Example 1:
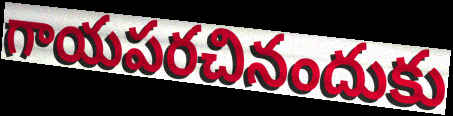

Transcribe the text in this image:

గాయపరచినందుకు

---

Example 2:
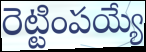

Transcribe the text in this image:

రెట్టింపయ్యే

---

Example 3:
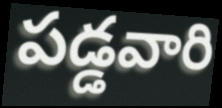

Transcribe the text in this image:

పడ్డవారి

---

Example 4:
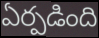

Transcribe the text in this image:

ఏర్పడింది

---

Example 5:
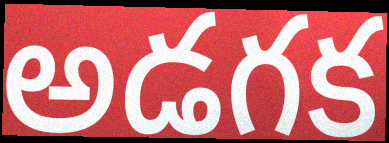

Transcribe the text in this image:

అడగక